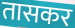
तासकर